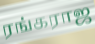
ரங்கராஜ